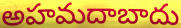
అహమదాబాదు